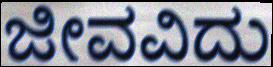
ಜೀವವಿದು